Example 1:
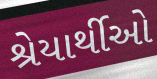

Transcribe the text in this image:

શ્રેયાર્થીઓ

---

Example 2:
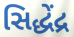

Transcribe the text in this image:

સિદ્ધેંદ્ર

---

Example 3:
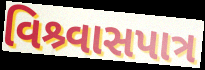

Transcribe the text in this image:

વિશ્ર્વાસપાત્ર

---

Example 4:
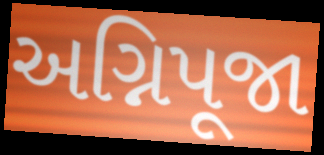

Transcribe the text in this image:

અગ્નિપૂજા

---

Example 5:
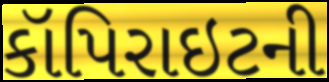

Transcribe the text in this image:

કૉપિરાઇટની